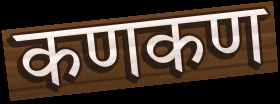
कणकण